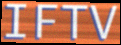
IFTV